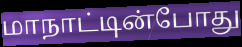
மாநாட்டின்போது